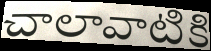
చాలావాటికి